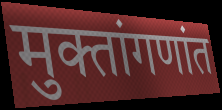
मुक्तांगणांत